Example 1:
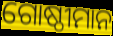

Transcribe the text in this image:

ଗୋଷ୍ଠୀମାନ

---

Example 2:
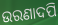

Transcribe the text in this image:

ଉରଣାଦପି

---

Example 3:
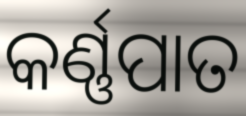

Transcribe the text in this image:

କର୍ଣ୍ଣପାତ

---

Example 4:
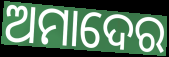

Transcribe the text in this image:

ଅମାଦେର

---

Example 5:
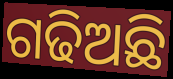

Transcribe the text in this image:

ଗଢିଅଛି